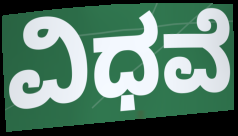
ವಿಧವೆ